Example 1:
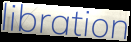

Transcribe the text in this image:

libration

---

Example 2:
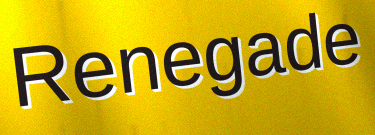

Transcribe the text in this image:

Renegade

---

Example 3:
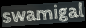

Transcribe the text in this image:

swamigal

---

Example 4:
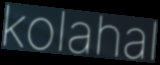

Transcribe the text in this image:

kolahal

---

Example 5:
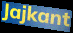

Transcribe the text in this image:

Jajkant